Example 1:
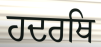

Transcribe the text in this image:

ਹਦਰਥਿ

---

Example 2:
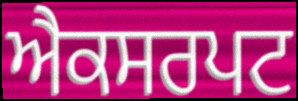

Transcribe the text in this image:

ਐਕਸਰਪਟ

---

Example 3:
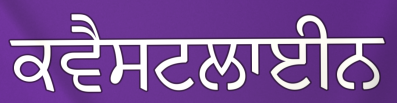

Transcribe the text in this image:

ਕਵੈਸਟਲਾਈਨ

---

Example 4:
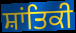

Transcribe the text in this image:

ਸ਼ਾਂਤਿਕੀ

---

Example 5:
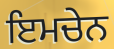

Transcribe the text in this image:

ਇਮਚੇਨ